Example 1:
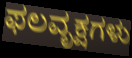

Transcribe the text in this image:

ಫಲವೃಕ್ಷಗಳು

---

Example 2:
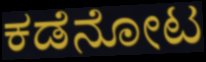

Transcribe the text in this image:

ಕಡೆನೋಟ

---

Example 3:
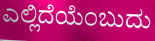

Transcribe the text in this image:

ಎಲ್ಲಿದೆಯೆಂಬುದು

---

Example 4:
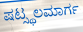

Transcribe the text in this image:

ಷಟ್ಸ್ಥಲಮಾರ್ಗ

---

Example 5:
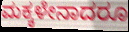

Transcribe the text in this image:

ಮಕ್ಕಳೇನಾದರೂ